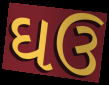
ઘઉ